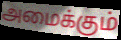
அமைக்கும்